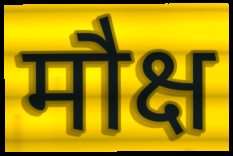
मौक्ष